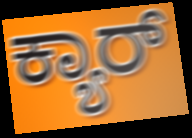
ಕ್ಯಾರ್